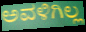
ಅವಳಿಗಿಲ್ಲ